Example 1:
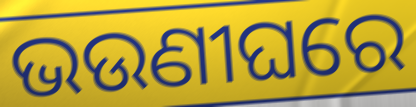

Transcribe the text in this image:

ଭଉଣୀଘରେ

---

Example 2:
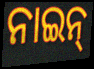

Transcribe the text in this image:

ନାଇନ୍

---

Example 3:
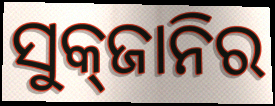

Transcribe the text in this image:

ସୁକ୍‌ଜାନିର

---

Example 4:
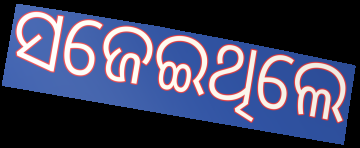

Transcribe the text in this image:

ସଜେଇଥିଲେ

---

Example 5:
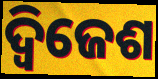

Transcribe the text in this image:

ଦ୍ୱିଜେଶ